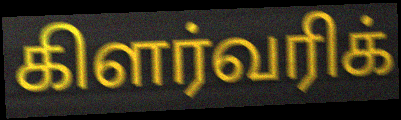
கிளர்வரிக்